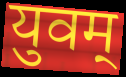
युवम्